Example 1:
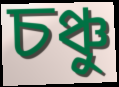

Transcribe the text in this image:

চঞ্চু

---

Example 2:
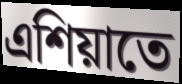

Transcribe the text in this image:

এশিয়াতে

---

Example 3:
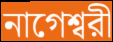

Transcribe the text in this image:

নাগেশ্বরী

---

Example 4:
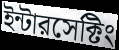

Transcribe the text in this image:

ইন্টারসেক্টিং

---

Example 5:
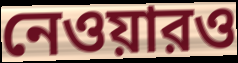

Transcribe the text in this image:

নেওয়ারও